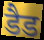
डैड